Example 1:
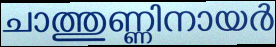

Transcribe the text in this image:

ചാത്തുണ്ണിനായർ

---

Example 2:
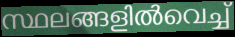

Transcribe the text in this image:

സ്ഥലങ്ങളിൽവെച്ച്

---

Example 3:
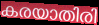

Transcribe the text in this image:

കരയാതിരി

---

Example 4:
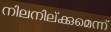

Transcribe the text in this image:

നിലനില്ക്കുമെന്ന്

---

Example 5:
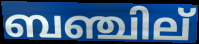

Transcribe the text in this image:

ബഞ്ചില്